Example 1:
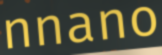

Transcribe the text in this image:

nnano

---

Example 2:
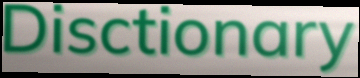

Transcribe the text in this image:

Disctionary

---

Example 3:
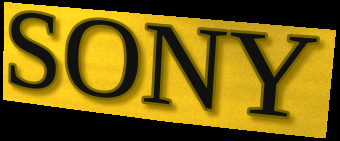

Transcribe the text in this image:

SONY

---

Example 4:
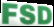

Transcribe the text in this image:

FSD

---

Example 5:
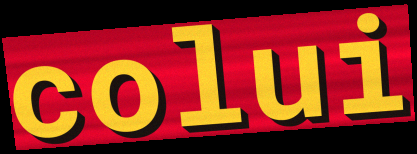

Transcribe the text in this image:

colui